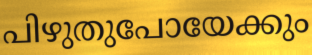
പിഴുതുപോയേക്കും